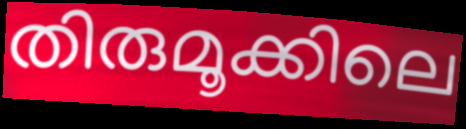
തിരുമൂക്കിലെ